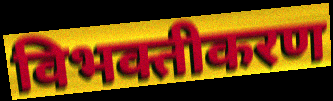
विभक्तीकरण